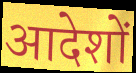
आदेशों